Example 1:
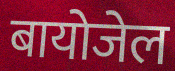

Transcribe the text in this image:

बायोजेल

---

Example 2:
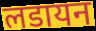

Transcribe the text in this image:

लडायन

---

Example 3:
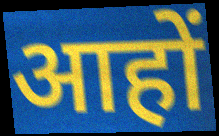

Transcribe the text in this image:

आहों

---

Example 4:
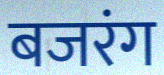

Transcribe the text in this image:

बजरंग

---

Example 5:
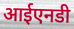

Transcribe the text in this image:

आईएनडी